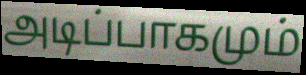
அடிப்பாகமும்